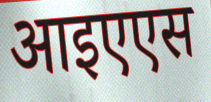
आइएएस